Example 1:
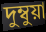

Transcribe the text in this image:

দুম্বুয়া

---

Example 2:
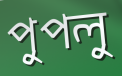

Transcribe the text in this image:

পুপলু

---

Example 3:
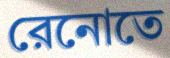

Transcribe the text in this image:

রেনোতে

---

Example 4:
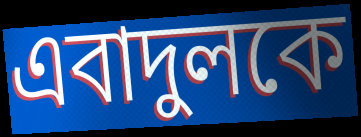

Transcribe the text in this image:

এবাদুলকে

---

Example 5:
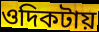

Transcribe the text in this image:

ওদিকটায়